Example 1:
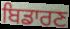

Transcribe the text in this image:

ਬਿਡਾਰਣ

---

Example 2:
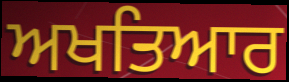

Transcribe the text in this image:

ਅਖਤਿਆਰ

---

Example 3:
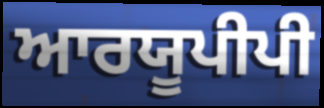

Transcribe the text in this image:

ਆਰਯੂਪੀਪੀ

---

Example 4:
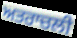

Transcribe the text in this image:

ਅਤਰਾਚਲੀ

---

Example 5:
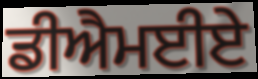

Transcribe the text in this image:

ਡੀਐਮਈਏ